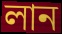
লান